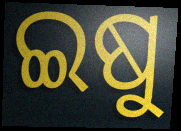
ଇଷୁ